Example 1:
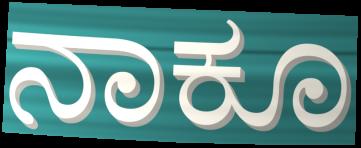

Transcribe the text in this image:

ನಾಕೂ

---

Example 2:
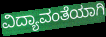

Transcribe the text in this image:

ವಿದ್ಯಾವಂತೆಯಾಗಿ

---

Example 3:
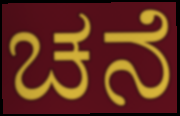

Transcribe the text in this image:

ಚನೆ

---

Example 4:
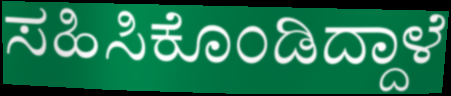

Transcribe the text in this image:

ಸಹಿಸಿಕೊಂಡಿದ್ದಾಳೆ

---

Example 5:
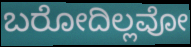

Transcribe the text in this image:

ಬರೋದಿಲ್ಲವೋ